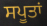
ਸਪੂਤਾਂ